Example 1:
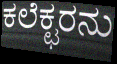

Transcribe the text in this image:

ಕಲೆಕ್ಟರನು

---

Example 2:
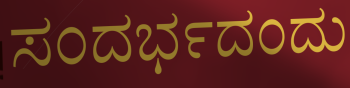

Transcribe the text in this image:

ಸಂದರ್ಭದಂದು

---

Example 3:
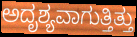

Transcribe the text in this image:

ಅದೃಶ್ಯವಾಗುತ್ತಿತ್ತು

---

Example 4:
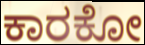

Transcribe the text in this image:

ಕಾರಕೋ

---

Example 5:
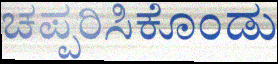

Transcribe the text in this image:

ಚಪ್ಪರಿಸಿಕೊಂಡು